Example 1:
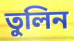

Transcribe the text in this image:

তুলিন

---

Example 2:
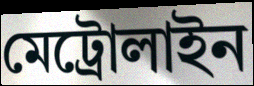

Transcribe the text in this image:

মেট্রোলাইন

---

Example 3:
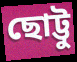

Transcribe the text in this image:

ছোট্টু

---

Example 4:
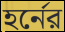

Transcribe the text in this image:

হর্নের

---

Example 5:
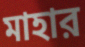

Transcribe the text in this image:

মাহার